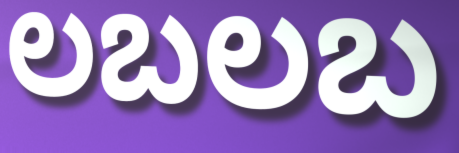
లబలబ